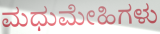
ಮಧುಮೇಹಿಗಳು